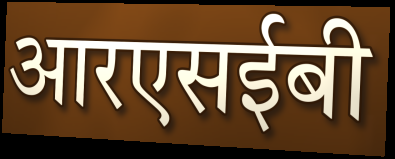
आरएसईबी